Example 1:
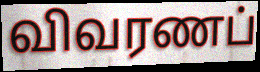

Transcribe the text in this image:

விவரணப்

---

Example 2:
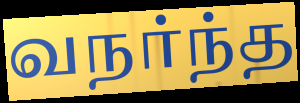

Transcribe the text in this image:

வநர்ந்த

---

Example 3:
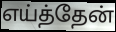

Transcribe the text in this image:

எய்த்தேன்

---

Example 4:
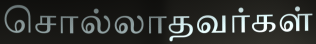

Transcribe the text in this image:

சொல்லாதவர்கள்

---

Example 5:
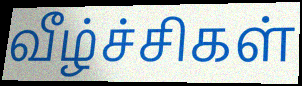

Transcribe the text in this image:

வீழ்ச்சிகள்